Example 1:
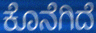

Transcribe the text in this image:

ಕೊನೆಗಿದೆ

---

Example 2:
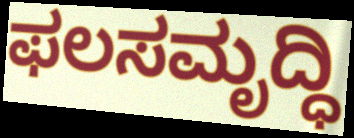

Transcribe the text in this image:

ಫಲಸಮೃದ್ಧಿ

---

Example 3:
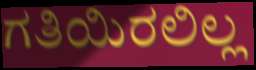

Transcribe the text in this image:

ಗತಿಯಿರಲಿಲ್ಲ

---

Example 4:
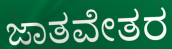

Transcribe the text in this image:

ಜಾತವೇತರ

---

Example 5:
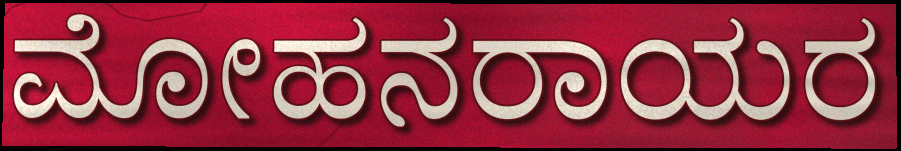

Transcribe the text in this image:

ಮೋಹನರಾಯರ